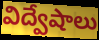
విద్వేషాలు